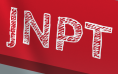
JNPT